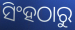
ସିଂହଠାରୁ